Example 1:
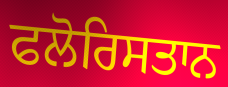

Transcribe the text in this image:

ਫਲੋਰਿਸਤਾਨ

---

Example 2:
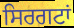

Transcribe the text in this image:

ਸਿਰਗਟਾਂ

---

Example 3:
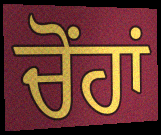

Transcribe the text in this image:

ਚੋਂਹਾਂ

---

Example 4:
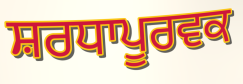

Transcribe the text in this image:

ਸ਼ਰਧਾਪੂਰਵਕ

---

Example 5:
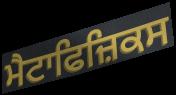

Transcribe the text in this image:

ਮੈਟਾਫਿਜ਼ਿਕਸ